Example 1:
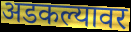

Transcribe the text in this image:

अडकल्यावर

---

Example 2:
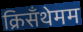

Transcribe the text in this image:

क्रिसँथेमम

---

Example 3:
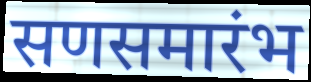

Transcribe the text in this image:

सणसमारंभ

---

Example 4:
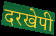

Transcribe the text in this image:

दरखेपी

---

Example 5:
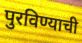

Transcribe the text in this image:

पुरविण्याची